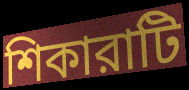
শিকারাটি